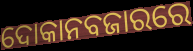
ଦୋକାନବଜାରରେ